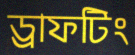
ড্রাফটিং